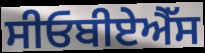
ਸੀਓਬੀਏਐੱਸ